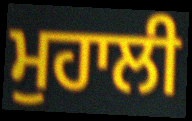
ਮੁਹਾਲੀ